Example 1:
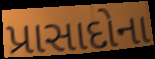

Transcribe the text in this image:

પ્રાસાદોના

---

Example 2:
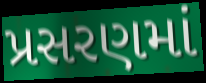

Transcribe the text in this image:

પ્રસરણમાં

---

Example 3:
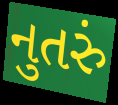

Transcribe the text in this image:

નુતરું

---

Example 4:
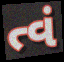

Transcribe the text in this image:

ત્વં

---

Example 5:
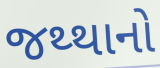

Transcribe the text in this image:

જથ્થાનો